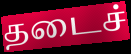
தடைச்